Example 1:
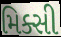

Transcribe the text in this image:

મિક્સી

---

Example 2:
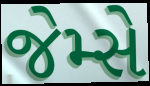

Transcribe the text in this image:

જેમ્સે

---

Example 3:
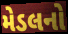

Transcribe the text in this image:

મેડલનો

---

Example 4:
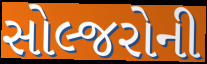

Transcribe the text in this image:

સોલ્જરોની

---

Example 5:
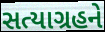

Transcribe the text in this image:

સત્યાગ્રહને